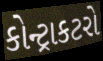
કોન્ટ્રાકટરો